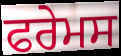
ਫਰੇਮਸ